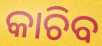
କାଚିବ